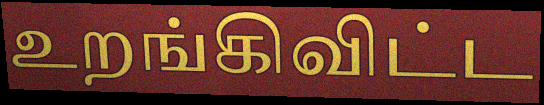
உறங்கிவிட்ட